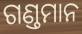
ଗଣ୍ଡମାନ